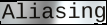
Aliasing